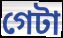
গেটা